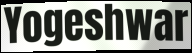
Yogeshwar